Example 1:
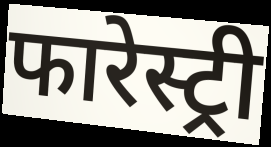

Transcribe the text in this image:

फारेस्ट्री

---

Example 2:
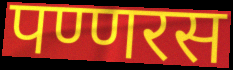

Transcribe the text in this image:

पण्णरस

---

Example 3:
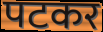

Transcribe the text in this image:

पटकर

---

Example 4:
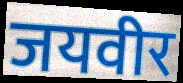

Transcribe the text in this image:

जयवीर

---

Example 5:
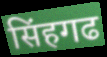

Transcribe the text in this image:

सिंहगढ